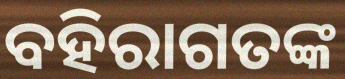
ବହିରାଗତଙ୍କ